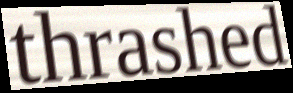
thrashed